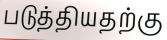
படுத்தியதற்கு